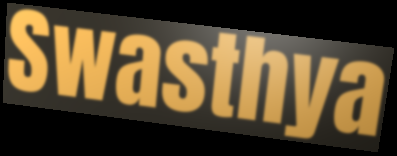
Swasthya